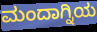
ಮಂದಾಗ್ನಿಯ